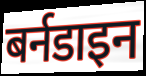
बर्नडाइन